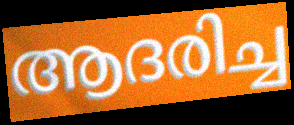
ആദരിച്ച